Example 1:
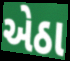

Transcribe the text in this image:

એઠા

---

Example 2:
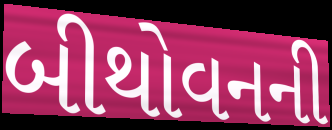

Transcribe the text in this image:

બીથોવનની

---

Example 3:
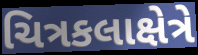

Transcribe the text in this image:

ચિત્રકલાક્ષેત્રે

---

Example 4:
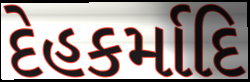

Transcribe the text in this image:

દેહકર્માદિ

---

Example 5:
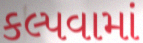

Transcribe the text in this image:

કલ્પવામાં